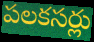
పలకసర్లు